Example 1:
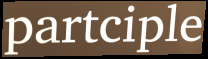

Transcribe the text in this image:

partciple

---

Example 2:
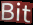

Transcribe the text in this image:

Bit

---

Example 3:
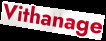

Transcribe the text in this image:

Vithanage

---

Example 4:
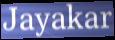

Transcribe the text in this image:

Jayakar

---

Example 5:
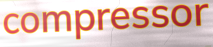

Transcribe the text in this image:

compressor